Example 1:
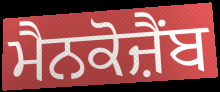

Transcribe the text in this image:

ਮੈਨਕੋਜ਼ੈਂਬ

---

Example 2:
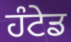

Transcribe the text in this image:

ਹੰਟੇਡ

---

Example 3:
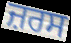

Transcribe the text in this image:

ਜ਼ਰਸ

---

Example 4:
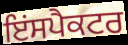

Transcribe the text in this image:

ਇਂਸਪੈਕਟਰ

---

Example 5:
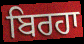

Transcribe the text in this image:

ਬਿਰਹਾ